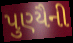
પુણ્યૈની